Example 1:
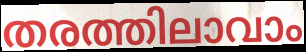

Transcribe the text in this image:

തരത്തിലാവാം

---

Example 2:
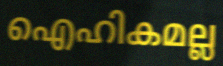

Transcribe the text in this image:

ഐഹികമല്ല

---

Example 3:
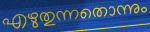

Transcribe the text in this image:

എഴുതുന്നതൊന്നും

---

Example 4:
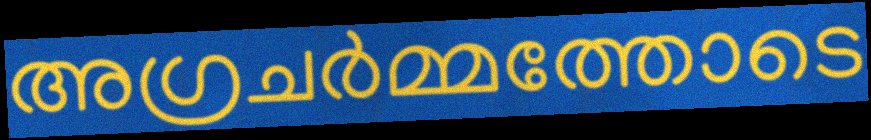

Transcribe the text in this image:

അഗ്രചർമ്മത്തോടെ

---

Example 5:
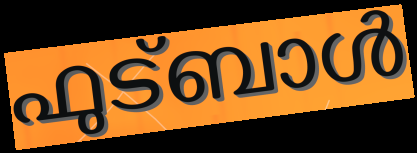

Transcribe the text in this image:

ഫുട്ബാൾ